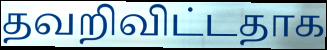
தவறிவிட்டதாக